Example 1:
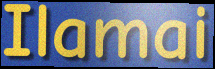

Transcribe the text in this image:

Ilamai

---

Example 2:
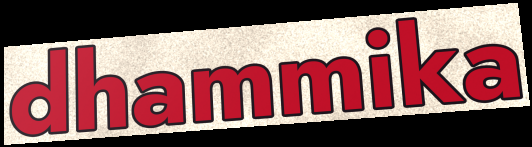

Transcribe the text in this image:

dhammika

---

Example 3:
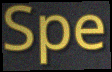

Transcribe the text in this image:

Spe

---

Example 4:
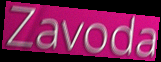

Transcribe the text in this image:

Zavoda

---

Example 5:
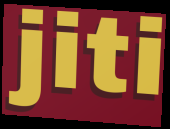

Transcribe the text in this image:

jiti